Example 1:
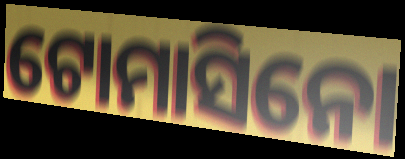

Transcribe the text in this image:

ଟୋମାସିନୋ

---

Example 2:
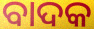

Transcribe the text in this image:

ବାଦକ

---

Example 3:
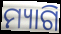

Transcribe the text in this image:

ମ୍ୟାଗି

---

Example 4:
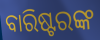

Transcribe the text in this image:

ବାରିଷ୍ଟରଙ୍କ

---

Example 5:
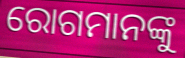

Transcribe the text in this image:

ରୋଗମାନଙ୍କୁ